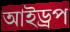
আইড্রপ